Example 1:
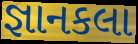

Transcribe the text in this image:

જ્ઞાનકલા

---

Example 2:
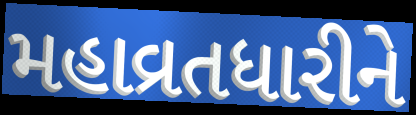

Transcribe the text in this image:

મહાવ્રતધારીને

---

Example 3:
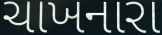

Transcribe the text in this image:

ચાખનારા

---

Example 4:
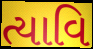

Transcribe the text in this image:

ત્યાવિ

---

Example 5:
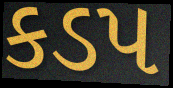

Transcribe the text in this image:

કડપ